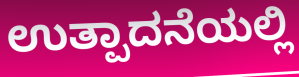
ಉತ್ಪಾದನೆಯಲ್ಲಿ